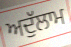
ਅਦੁੱਲਾਮ